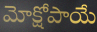
మోక్షోపాయే